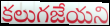
కలుగజేయని